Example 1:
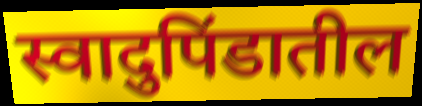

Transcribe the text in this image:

स्वादुपिंडातील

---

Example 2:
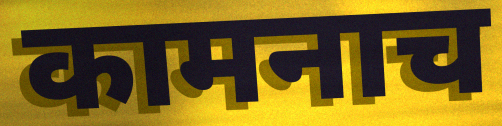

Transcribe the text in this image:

कामनाच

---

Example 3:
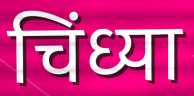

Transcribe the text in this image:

चिंध्या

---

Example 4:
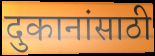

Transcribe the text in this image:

दुकानांसाठी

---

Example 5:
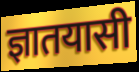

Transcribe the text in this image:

ज्ञातयासी